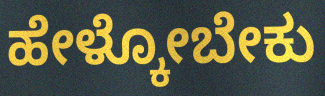
ಹೇಳ್ಕೋಬೇಕು